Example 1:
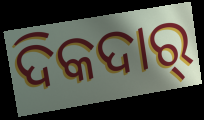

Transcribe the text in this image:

ଦିକଦାର୍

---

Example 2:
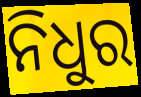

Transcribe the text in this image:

ନିଧୁର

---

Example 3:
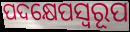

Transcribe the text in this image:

ପଦକ୍ଷେପସ୍ଵରୂପ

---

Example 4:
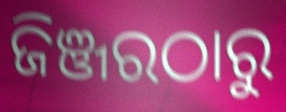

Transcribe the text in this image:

ଜିଞ୍ଜରଠାରୁ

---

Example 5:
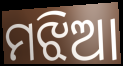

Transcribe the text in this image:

ମଝିଆ